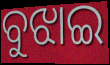
ବୁଝାଇ